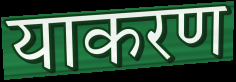
याकरण